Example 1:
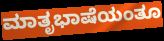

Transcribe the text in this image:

ಮಾತೃಭಾಷೆಯಂತೂ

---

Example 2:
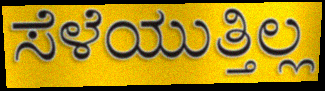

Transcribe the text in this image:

ಸೆಳೆಯುತ್ತಿಲ್ಲ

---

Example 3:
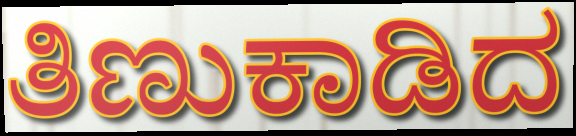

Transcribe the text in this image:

ತಿಣುಕಾಡಿದ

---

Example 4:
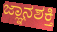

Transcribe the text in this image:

ಜ್ಞಾನಶಕ್ತಿ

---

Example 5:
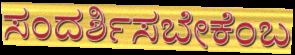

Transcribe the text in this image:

ಸಂದರ್ಶಿಸಬೇಕೆಂಬ